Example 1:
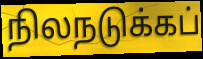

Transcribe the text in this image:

நிலநடுக்கப்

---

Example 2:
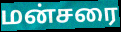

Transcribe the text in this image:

மன்சரை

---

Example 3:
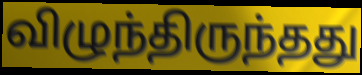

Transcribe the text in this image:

விழுந்திருந்தது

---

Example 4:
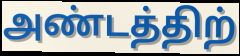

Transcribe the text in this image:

அண்டத்திற்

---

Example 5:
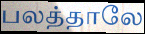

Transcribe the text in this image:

பலத்தாலே